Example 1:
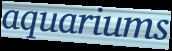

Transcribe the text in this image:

aquariums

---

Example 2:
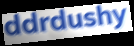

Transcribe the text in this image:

ddrdushy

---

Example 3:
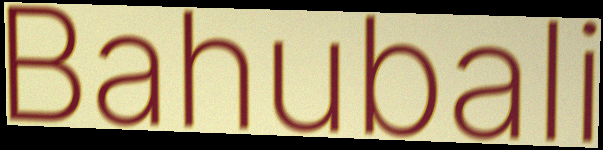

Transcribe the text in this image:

Bahubali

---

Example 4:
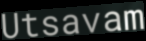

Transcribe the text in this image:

Utsavam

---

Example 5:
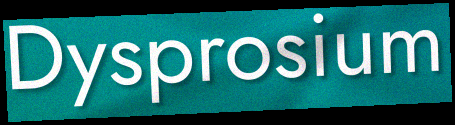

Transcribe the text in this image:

Dysprosium